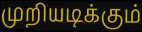
முறியடிக்கும்